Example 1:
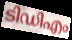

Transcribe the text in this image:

ടിഡിഎം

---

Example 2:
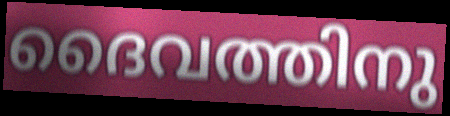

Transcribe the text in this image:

ദൈവത്തിനു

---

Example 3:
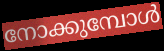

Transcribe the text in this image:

നോക്കുമ്പോൾ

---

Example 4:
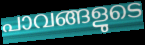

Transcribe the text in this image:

പാവങ്ങളുടെ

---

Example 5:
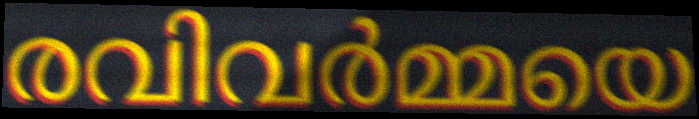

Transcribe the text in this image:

രവിവർമ്മയെ